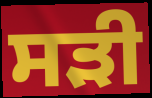
ਸੜੀ